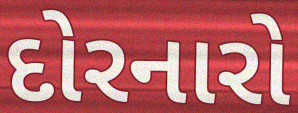
દોરનારો